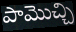
పామొచ్చి